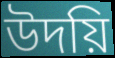
উদয়ি